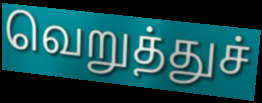
வெறுத்துச்